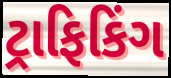
ટ્રાફિકિંગ